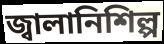
জ্বালানিশিল্প